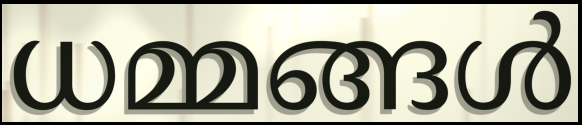
ധമ്മങ്ങൾ